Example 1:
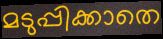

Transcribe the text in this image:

മടുപ്പിക്കാതെ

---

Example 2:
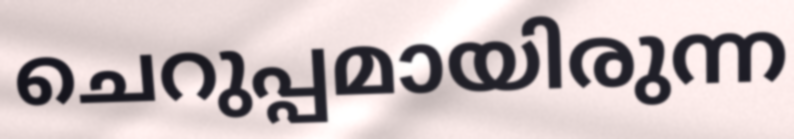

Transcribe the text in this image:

ചെറുപ്പമായിരുന്ന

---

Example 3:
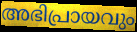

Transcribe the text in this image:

അഭിപ്രായവും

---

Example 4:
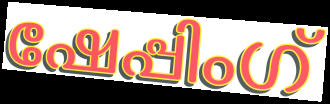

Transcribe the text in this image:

ഷേപ്പിംഗ്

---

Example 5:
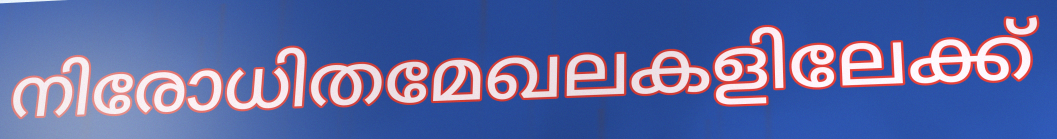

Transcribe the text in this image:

നിരോധിതമേഖലകളിലേക്ക്